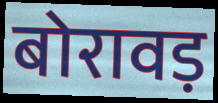
बोरावड़